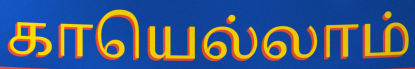
காயெல்லாம்